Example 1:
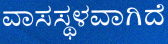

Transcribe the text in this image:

ವಾಸಸ್ಥಳವಾಗಿದೆ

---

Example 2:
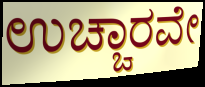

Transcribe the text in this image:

ಉಚ್ಚಾರವೇ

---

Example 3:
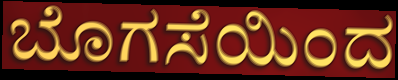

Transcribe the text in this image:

ಬೊಗಸೆಯಿಂದ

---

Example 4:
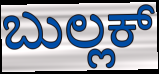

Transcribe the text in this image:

ಬುಲ್ಲಕ್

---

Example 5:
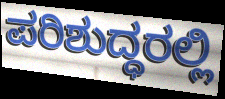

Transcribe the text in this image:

ಪರಿಶುದ್ಧರಲ್ಲಿ